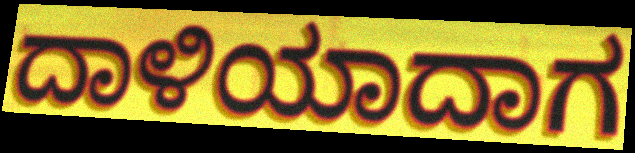
ದಾಳಿಯಾದಾಗ